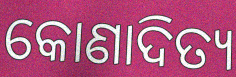
କୋଣାଦିତ୍ୟ